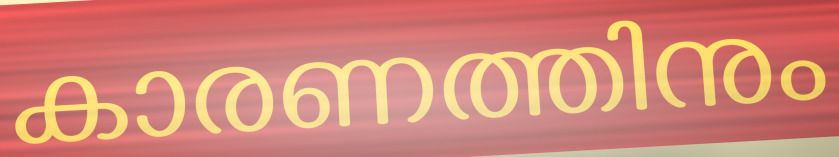
കാരണത്തിനും